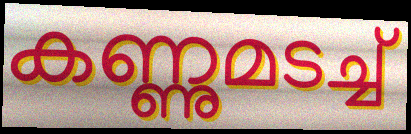
കണ്ണുമടച്ച്